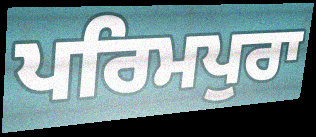
ਪਰਿਮਪੁਰਾ